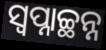
ସ୍ଵପ୍ନାଚ୍ଛନ୍ନ